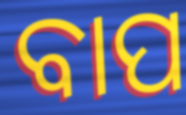
ବାପ